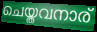
ചെയ്തവനാര്